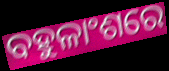
ବହୁଳାଂଶରେ